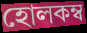
হোলকম্ব